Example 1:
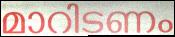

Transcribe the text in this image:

മാറിടണം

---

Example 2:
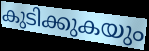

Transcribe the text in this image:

കുടിക്കുകയും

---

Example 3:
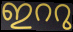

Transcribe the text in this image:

ഇററു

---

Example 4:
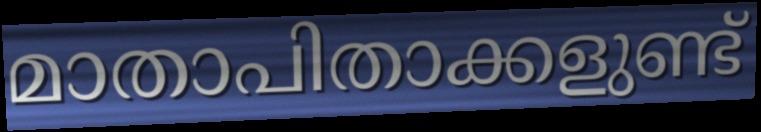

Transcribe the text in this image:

മാതാപിതാക്കളുണ്ട്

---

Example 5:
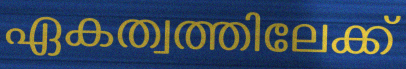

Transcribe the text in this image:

ഏകത്വത്തിലേക്ക്